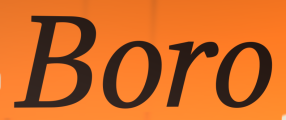
Boro